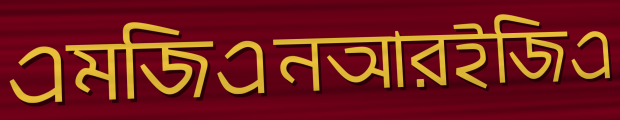
এমজিএনআরইজিএ